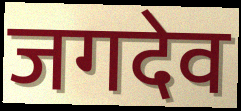
जगदेव